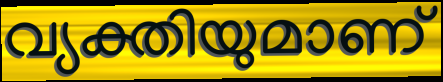
വ്യക്തിയുമാണ്